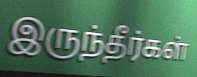
இருந்தீர்கள்